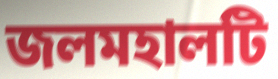
জলমহালটি